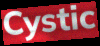
Cystic